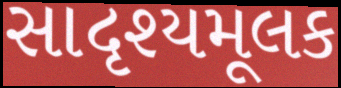
સાદૃશ્યમૂલક